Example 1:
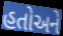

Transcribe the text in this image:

હતોઅને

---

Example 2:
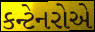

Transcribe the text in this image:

કન્ટેનરોએ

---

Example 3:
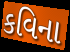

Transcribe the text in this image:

કવિના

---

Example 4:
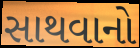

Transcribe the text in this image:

સાથવાનો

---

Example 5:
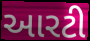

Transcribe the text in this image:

આરટી